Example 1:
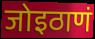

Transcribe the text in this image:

जोइठाणं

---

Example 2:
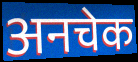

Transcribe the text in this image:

अनचेक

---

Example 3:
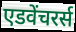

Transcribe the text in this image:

एडवेंचरर्स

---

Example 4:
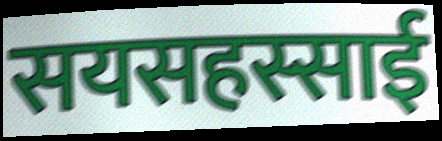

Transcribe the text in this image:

सयसहस्साई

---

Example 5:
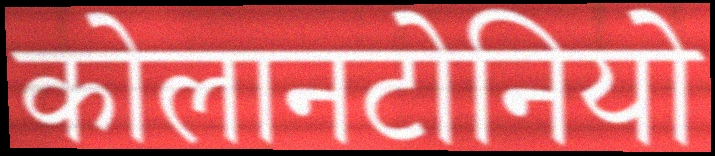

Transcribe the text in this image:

कोलानटोनियो